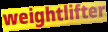
weightlifter